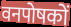
वनपोषकों